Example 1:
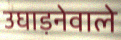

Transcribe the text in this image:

उघाड़नेवाले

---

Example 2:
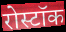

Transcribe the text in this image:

रोस्टॉक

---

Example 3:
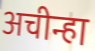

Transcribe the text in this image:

अचीन्हा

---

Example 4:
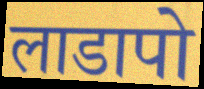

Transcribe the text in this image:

लाडापो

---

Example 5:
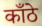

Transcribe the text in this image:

काँठे